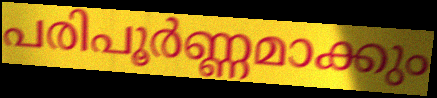
പരിപൂർണ്ണമാക്കും